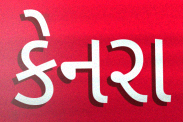
કેનરા